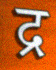
द्र